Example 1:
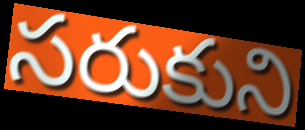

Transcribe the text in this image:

సరుకుని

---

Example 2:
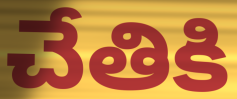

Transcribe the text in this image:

చేతికి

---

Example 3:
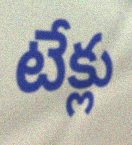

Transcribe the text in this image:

టేక్లు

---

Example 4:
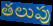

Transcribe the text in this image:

తలుపు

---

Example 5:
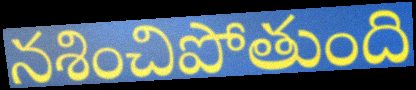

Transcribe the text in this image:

నశించిపోతుంది